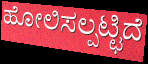
ಹೋಲಿಸಲ್ಪಟ್ಟಿದೆ